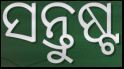
ସନ୍ତୁଷ୍ଟ